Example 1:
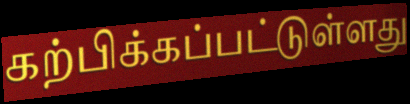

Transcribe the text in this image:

கற்பிக்கப்பட்டுள்ளது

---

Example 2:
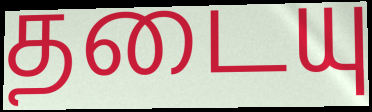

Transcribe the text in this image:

தடையு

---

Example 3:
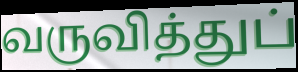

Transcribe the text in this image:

வருவித்துப்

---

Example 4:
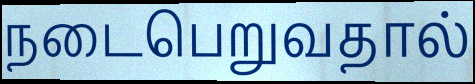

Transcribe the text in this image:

நடைபெறுவதால்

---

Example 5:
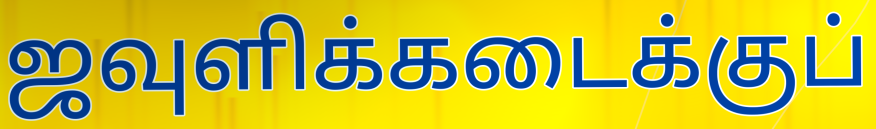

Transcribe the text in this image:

ஜவுளிக்கடைக்குப்